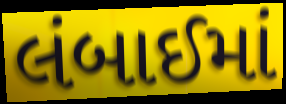
લંબાઈમાં